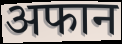
अफान